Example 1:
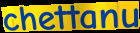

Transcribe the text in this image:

chettanu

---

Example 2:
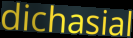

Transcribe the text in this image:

dichasial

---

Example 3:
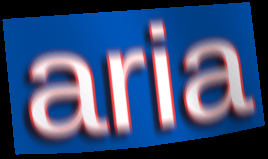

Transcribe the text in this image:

aria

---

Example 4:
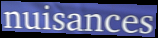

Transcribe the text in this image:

nuisances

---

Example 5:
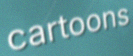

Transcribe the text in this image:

cartoons